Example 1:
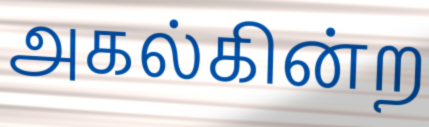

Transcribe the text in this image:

அகல்கின்ற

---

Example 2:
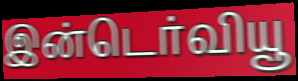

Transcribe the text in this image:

இன்டெர்வியூ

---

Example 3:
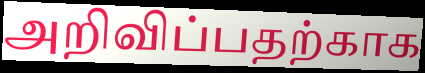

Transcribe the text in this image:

அறிவிப்பதற்காக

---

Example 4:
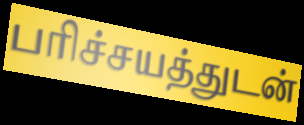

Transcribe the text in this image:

பரிச்சயத்துடன்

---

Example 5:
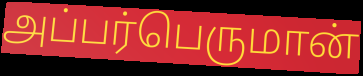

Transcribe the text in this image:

அப்பர்பெருமான்